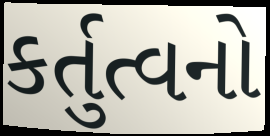
કર્તુત્વનો